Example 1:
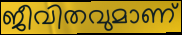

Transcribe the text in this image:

ജീവിതവുമാണ്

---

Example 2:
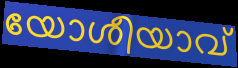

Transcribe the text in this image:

യോശീയാവ്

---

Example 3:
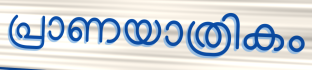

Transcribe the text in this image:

പ്രാണയാത്രികം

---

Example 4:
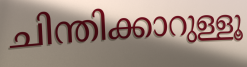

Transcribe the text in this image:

ചിന്തിക്കാറുള്ളൂ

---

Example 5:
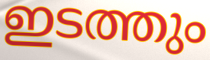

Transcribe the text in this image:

ഇടത്തും